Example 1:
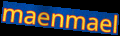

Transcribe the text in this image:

maenmael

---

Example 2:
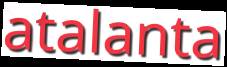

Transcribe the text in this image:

atalanta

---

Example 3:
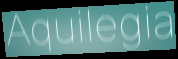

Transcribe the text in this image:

Aquilegia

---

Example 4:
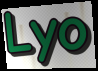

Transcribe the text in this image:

Lyo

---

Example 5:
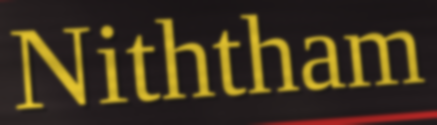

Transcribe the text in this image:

Niththam